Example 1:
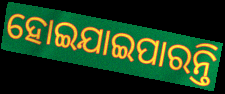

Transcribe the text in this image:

ହୋଇଯାଇପାରନ୍ତି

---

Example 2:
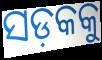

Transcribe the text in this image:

ସଡ଼କକୁ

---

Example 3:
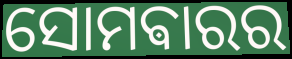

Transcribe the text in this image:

ସୋମଵାରର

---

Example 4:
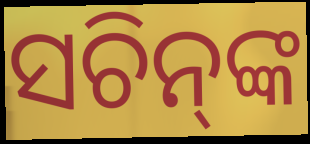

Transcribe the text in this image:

ସଚିନ୍‌ଙ୍କ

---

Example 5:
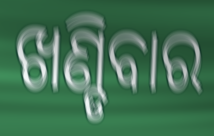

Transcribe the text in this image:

ଖଣ୍ଡିବାର